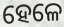
ହେଳେ